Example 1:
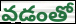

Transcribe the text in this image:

వడంతో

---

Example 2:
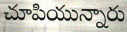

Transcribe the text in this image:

చూపియున్నారు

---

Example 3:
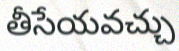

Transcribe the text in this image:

తీసేయవచ్చు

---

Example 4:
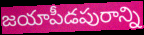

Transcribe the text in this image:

జయాపీడపురాన్ని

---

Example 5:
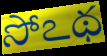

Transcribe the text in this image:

సోఽథ